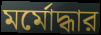
মর্মোদ্ধার